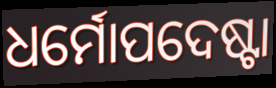
ଧର୍ମୋପଦେଷ୍ଟା